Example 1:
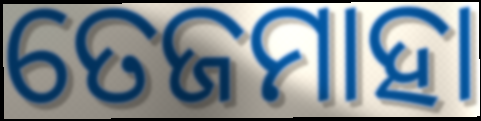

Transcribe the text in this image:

ତେଜମାହା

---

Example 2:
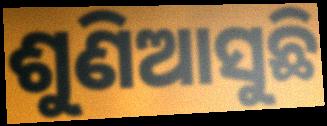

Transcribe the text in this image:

ଶୁଣିଆସୁଛି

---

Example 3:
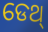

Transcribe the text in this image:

ଡେଥ୍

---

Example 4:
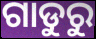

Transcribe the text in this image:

ଗାଡୁରୁ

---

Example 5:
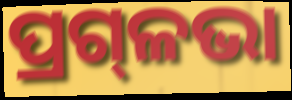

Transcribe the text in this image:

ପ୍ରଗ୍‌ଳଭା